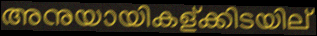
അനുയായികള്ക്കിടയില്